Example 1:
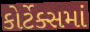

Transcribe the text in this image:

કોર્ટેક્સમાં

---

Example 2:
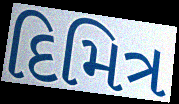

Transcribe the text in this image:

દિમિત્ર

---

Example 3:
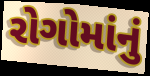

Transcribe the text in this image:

રોગોમાંનું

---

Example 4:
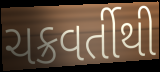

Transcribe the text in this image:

ચક્રવર્તીથી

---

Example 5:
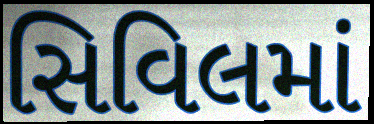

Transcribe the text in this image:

સિવિલમાં